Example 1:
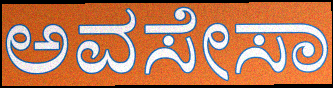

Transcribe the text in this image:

ಅವಸೇಸಾ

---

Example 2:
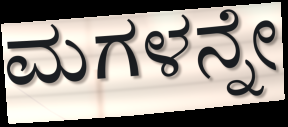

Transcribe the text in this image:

ಮಗಳನ್ನೇ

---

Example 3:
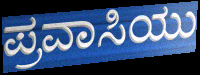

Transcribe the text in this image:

ಪ್ರವಾಸಿಯು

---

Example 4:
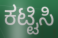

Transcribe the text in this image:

ಕಟ್ಟಿಸಿ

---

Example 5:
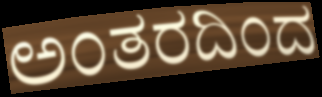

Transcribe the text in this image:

ಅಂತರದಿಂದ